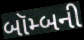
બૉમ્બની